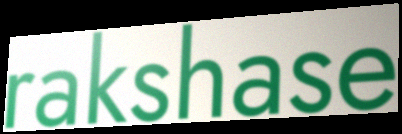
rakshase